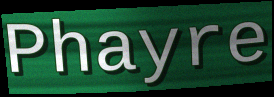
Phayre